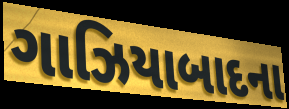
ગાઝિયાબાદના